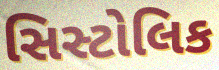
સિસ્ટોલિક